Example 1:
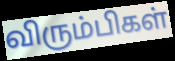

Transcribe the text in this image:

விரும்பிகள்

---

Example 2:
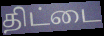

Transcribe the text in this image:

திட்டை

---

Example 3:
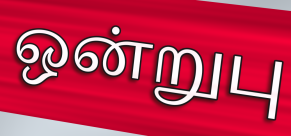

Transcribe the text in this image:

ஒன்றுபு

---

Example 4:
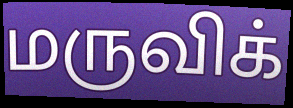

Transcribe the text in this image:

மருவிக்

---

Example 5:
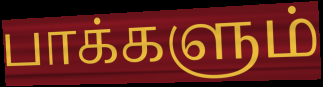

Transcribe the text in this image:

பாக்களும்